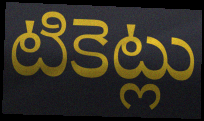
టికెట్లు